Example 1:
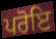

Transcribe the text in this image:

ਪਰੋਇ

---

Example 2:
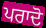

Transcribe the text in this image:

ਪਰਾਦੋ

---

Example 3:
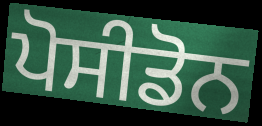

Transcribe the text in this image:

ਪੋਸੀਡੋਨ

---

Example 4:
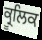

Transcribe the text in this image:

ਕ੍ਰੂਲਿਕ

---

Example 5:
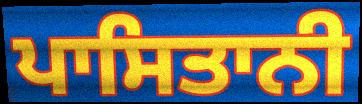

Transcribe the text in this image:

ਪਾਸਿਤਾਨੀ